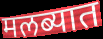
मलब्यात